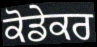
ਕੋਡੇਕਰ